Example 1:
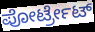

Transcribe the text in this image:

ಪೋರ್ಟ್ರೇಟ್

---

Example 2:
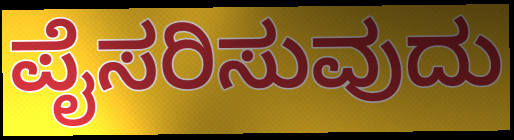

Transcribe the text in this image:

ಪೈಸರಿಸುವುದು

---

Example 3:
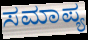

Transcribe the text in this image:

ಸಮಾಪ್ಯ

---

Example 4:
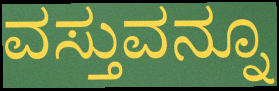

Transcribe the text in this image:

ವಸ್ತುವನ್ನೂ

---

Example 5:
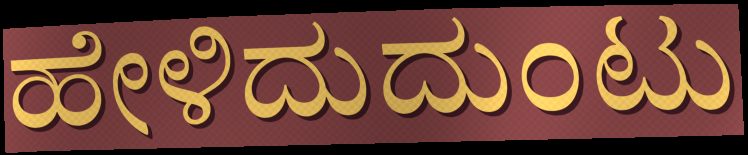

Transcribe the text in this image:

ಹೇಳಿದುದುಂಟು